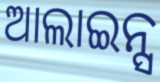
ଆଲାଇନ୍ସ